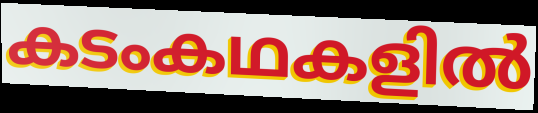
കടംകഥകളിൽ